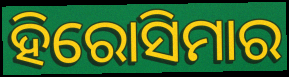
ହିରୋସିମାର